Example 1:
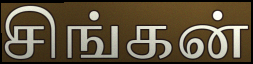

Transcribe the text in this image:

சிங்கன்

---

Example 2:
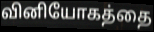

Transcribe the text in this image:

வினியோகத்தை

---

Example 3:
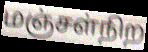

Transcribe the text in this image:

மஞ்சள்நிற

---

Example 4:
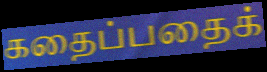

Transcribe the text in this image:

கதைப்பதைக்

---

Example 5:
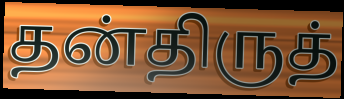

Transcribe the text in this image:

தன்திருத்